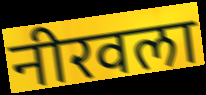
नीरवला